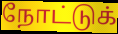
நோட்டுக்